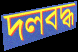
দলবদ্ধ